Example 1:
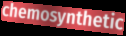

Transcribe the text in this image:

chemosynthetic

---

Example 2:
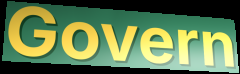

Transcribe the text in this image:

Govern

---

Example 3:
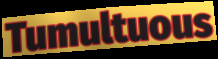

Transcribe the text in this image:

Tumultuous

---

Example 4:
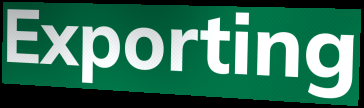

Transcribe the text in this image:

Exporting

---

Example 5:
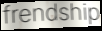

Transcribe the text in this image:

frendship